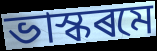
ভাস্কৰমে